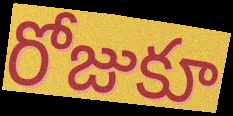
రోజుకూ